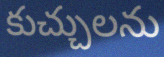
కుచ్చులను